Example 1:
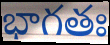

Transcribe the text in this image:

భాగతః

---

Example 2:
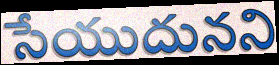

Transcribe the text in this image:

సేయుదునని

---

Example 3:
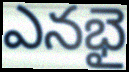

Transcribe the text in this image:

ఎనభై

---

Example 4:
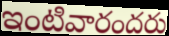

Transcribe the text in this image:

ఇంటివారందరు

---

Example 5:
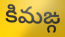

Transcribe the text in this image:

కిమఙ్గ